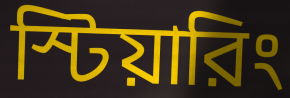
স্টিয়ারিং